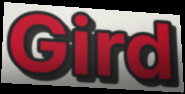
Gird